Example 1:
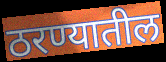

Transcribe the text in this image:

ठरण्यातील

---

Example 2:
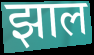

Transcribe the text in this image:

झाल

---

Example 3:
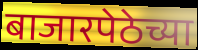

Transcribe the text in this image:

बाजारपेठेच्या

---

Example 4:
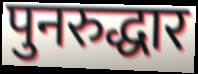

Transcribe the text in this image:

पुनरुद्धार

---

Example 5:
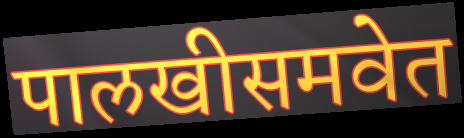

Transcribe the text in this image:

पालखीसमवेत